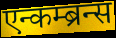
एन्कम्ब्रन्स